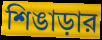
শিঙাড়ার